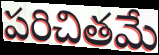
పరిచితమే